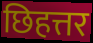
छिहत्तर